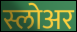
स्लोअर